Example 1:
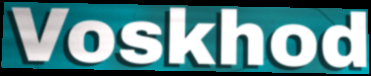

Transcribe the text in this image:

Voskhod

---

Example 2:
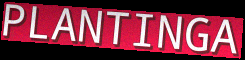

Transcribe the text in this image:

PLANTINGA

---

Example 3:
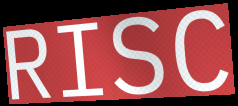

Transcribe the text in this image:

RISC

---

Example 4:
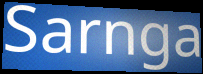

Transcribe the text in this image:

Sarnga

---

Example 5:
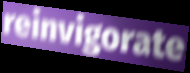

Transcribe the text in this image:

reinvigorate